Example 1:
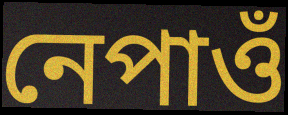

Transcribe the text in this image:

নেপাওঁ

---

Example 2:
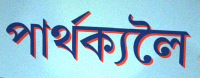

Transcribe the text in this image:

পাৰ্থক্যলৈ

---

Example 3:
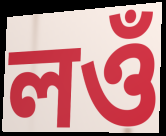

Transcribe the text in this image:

লওঁ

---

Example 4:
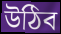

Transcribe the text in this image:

উঠিব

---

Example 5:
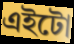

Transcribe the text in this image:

এইটো